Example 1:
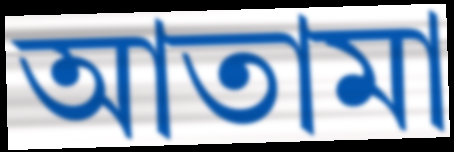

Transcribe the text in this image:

আতামা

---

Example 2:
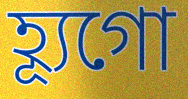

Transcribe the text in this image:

হ্যূগো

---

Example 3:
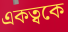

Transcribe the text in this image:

একত্বকে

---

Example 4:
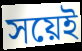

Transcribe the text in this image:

সয়েই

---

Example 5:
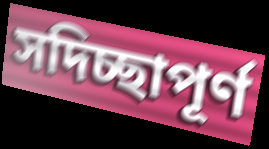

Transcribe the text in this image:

সদিচ্ছাপূর্ণ